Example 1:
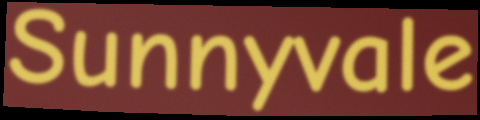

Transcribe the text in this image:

Sunnyvale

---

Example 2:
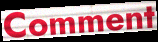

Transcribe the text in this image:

Comment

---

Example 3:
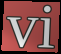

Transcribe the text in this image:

vi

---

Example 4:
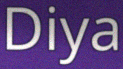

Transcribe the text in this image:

Diya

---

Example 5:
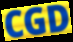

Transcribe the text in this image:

CGD